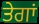
ਤੇਗਾਂ